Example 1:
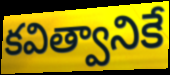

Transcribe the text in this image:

కవిత్వానికే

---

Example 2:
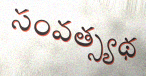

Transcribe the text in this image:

సంవత్స్యథ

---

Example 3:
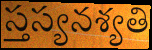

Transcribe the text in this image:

స్తస్యనశ్యతి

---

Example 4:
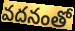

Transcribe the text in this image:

వదనంతో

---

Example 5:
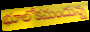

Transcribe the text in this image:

భూలోకమందున్న